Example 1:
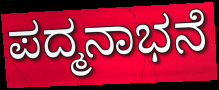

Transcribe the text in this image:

ಪದ್ಮನಾಭನೆ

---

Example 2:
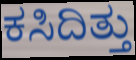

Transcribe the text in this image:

ಕಸಿದಿತ್ತು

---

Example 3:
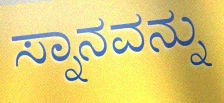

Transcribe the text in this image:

ಸ್ನಾನವನ್ನು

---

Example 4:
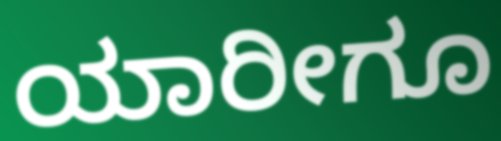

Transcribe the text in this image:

ಯಾರೀಗೂ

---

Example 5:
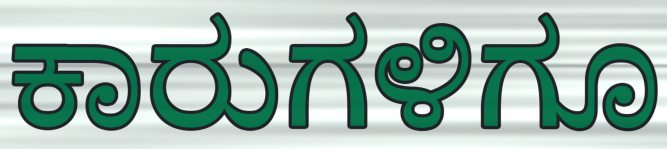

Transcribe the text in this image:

ಕಾರುಗಳಿಗೂ